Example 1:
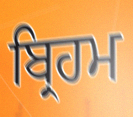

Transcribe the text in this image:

ਬ੍ਰਿਹਮ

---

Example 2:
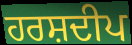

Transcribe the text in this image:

ਹਰਸ਼ਦੀਪ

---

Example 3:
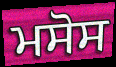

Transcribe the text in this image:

ਮਸੋਸ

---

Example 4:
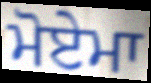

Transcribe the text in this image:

ਮੋਏਮਾ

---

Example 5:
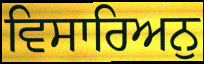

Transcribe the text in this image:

ਵਿਸਾਰਿਅਨੁ